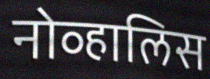
नोव्हालिस